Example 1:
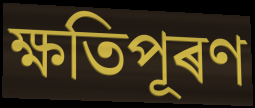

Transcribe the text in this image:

ক্ষতিপূৰণ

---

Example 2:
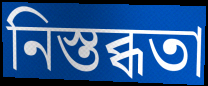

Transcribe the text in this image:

নিস্তব্ধতা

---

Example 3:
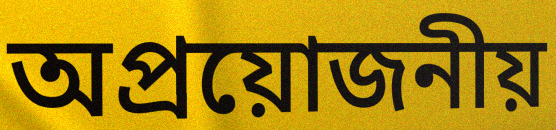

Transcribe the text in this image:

অপ্ৰয়োজনীয়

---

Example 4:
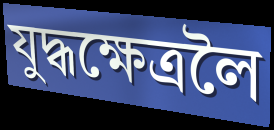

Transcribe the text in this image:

যুদ্ধক্ষেত্ৰলৈ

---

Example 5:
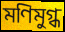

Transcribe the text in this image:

মণিমুগ্ধ